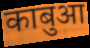
काबुआ